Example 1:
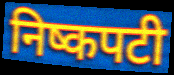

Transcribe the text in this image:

निष्कपटी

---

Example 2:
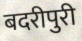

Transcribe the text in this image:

बदरीपुरी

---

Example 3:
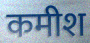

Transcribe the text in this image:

कमीश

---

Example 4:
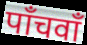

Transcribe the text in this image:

पाँचवाँ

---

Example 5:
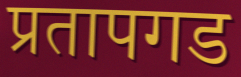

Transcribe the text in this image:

प्रतापगड